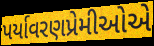
પર્યાવરણપ્રેમીઓએ